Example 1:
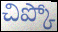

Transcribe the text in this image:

చిప్కో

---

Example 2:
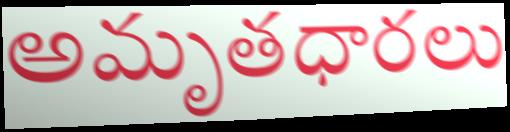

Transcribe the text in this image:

అమృతధారలు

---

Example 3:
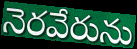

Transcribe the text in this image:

నెరవేరును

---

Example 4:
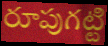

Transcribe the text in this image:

రూపుగట్టి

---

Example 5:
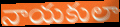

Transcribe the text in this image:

నాయకులా